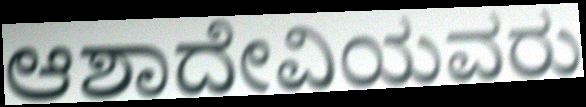
ಆಶಾದೇವಿಯವರು